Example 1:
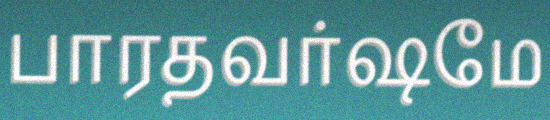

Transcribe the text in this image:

பாரதவர்ஷமே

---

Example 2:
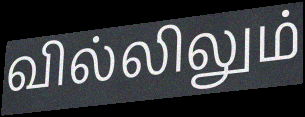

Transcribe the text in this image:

வில்லிலும்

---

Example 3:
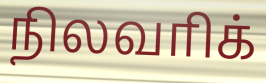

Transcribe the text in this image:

நிலவரிக்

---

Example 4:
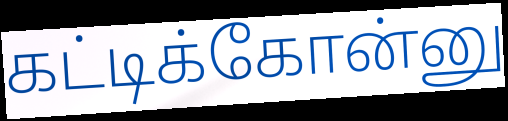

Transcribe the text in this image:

கட்டிக்கோன்னு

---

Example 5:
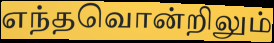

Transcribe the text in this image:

எந்தவொன்றிலும்